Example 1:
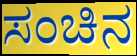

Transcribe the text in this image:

ಸಂಚಿನ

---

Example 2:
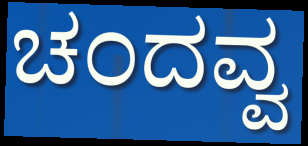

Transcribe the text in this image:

ಚಂದವ್ವ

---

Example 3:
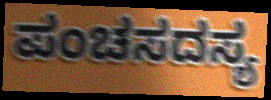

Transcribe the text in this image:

ಪಂಚಸದಸ್ಯ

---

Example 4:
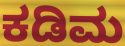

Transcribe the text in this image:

ಕಡಿಮ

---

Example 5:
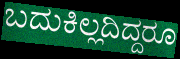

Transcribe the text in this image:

ಬದುಕಿಲ್ಲದಿದ್ದರೂ